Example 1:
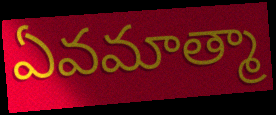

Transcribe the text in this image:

ఏవమాత్మా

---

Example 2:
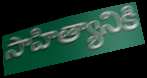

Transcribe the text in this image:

సాహిత్యానికి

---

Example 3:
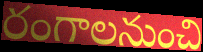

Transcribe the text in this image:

రంగాలనుంచి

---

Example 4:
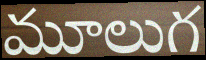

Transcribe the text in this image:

మూలుగ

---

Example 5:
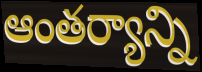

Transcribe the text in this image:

ఆంతర్యాన్ని